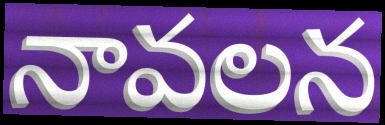
నావలన